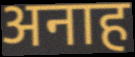
अनाह